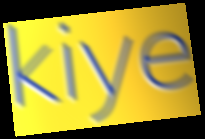
kiye